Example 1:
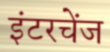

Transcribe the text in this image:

इंटरचेंज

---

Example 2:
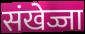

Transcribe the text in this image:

संखेज्जा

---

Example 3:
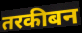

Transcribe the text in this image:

तरकीबन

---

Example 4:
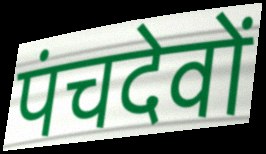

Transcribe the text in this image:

पंचदेवों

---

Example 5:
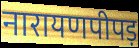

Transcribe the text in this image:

नारायणपीपड़